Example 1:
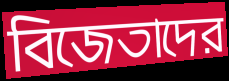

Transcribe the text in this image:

বিজেতাদের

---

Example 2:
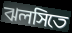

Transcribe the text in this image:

ঝলসিতে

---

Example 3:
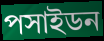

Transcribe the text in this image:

পসাইডন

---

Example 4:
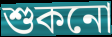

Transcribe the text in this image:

শুকনো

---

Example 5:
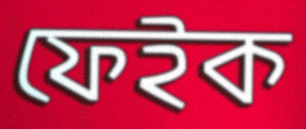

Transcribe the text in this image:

ফেইক